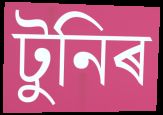
টুনিৰ